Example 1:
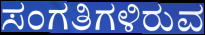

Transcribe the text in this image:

ಸಂಗತಿಗಳಿರುವ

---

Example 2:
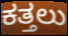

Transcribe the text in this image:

ಕತ್ತಲು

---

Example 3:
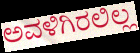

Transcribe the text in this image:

ಅವಳಿಗಿರಲಿಲ್ಲ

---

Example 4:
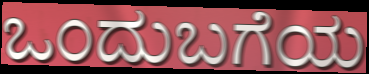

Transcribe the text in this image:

ಒಂದುಬಗೆಯ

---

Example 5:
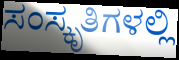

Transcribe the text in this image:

ಸಂಸ್ಕೃತಿಗಳಲ್ಲಿ